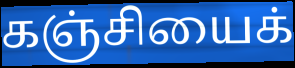
கஞ்சியைக்